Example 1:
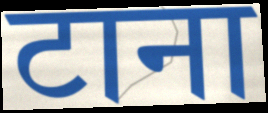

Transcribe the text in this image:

टाना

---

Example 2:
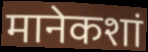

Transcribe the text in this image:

मानेकशां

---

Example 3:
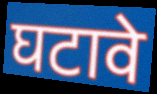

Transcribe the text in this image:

घटावे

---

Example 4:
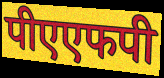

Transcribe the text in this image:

पीएएफपी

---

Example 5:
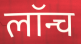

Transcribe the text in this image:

लॉन्च